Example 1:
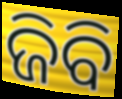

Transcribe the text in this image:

ଜିବି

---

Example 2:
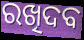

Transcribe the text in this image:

ରଖିଦବ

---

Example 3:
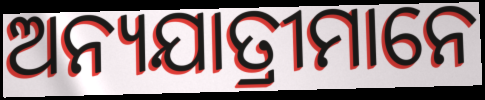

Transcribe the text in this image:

ଅନ୍ୟଯାତ୍ରୀମାନେ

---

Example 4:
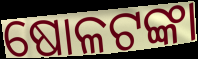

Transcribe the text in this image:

ଷୋଳଟଙ୍କା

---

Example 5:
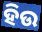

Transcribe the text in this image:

ହିଉ